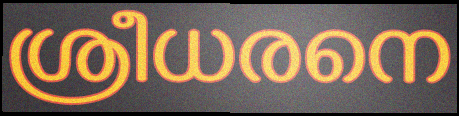
ശ്രീധരനെ